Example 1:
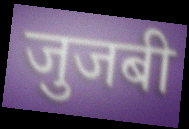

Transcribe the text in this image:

जुजबी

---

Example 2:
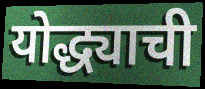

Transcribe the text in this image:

योद्ध्याची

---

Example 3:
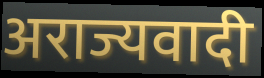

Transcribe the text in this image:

अराज्यवादी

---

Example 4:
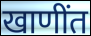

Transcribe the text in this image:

खाणींत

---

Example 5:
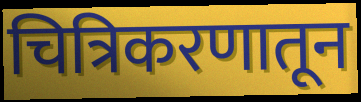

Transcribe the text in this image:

चित्रिकरणातून